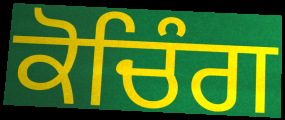
ਕੋਚਿੰਗ